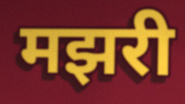
मझरी